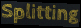
Splitting